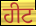
ਹੀਟ